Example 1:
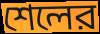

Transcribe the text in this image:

শেলের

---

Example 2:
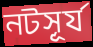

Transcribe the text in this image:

নটসূর্য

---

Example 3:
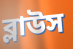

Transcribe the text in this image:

ব্লাউস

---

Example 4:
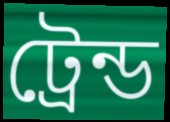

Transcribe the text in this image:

ট্রেন্ড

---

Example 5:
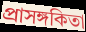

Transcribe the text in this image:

প্রাসঙ্গকিতা